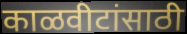
काळवीटांसाठी